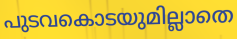
പുടവകൊടയുമില്ലാതെ